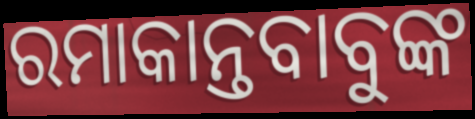
ରମାକାନ୍ତବାବୁଙ୍କ